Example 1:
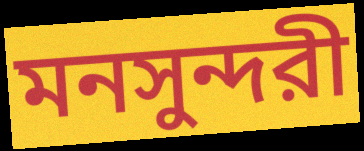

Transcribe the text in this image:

মনসুন্দরী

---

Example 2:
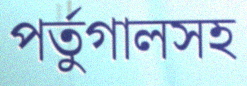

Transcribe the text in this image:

পর্তুগালসহ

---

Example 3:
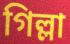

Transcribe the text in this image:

গিল্লা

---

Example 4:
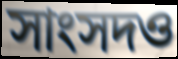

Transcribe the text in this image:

সাংসদও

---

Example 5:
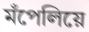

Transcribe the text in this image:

মঁপেলিয়ে